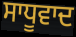
ਸਾਧੂਵਾਦ